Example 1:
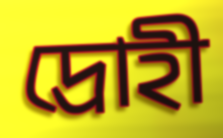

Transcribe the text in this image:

দ্ৰোহী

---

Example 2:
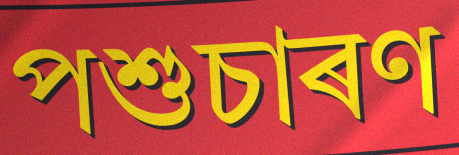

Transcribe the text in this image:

পশুচাৰণ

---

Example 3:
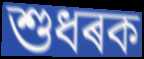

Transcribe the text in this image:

শুধৰক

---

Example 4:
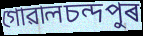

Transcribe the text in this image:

গোৱালচন্দপুৰ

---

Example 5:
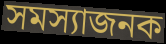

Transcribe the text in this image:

সমস্যাজনক